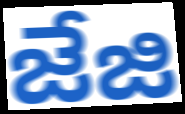
జేజి